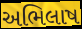
અભિલાષ